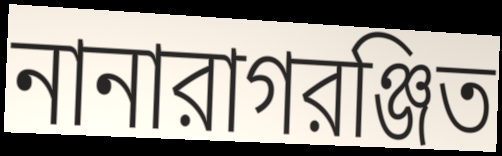
নানারাগরঞ্জিত